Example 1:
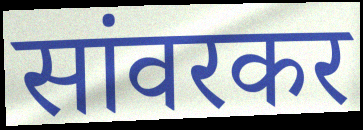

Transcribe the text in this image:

सांवरकर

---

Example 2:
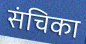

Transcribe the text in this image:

संचिका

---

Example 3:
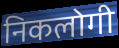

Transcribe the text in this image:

निकलोगी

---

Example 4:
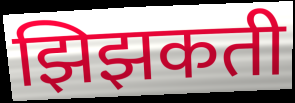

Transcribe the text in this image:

झिझकती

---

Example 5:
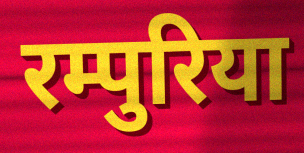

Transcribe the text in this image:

रम्पुरिया